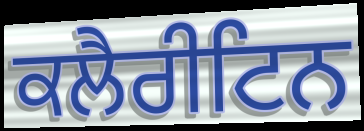
ਕਲੈਰੀਟਿਨ